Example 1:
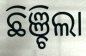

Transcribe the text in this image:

ଛିଞ୍ଚିଲା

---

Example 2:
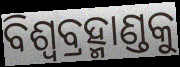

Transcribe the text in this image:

ବିଶ୍ବବ୍ରହ୍ମାଣ୍ଡକୁ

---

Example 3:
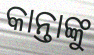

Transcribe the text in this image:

କାନ୍ତାଙ୍କୁ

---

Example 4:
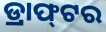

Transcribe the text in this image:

ଡ୍ରାଫ୍‌ଟର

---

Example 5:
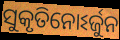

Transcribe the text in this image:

ସୁକୃତିନୋଽର୍ଜୁନ